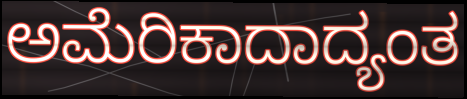
ಅಮೆರಿಕಾದಾದ್ಯಂತ